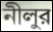
নীলুর